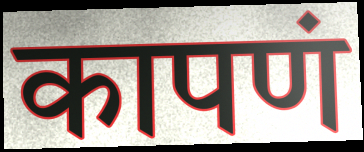
कापणं